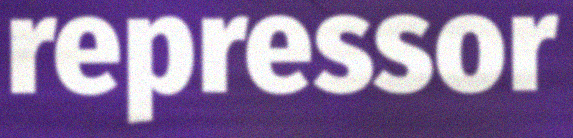
repressor